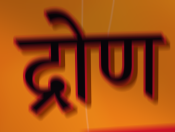
द्रोण